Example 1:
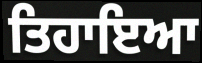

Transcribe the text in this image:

ਤਿਹਾਇਆ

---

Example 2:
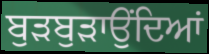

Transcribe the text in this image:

ਬੁੜਬੁੜਾਉਂਦਿਆਂ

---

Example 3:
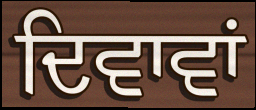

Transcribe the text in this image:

ਦਿਵਾਵਾਂ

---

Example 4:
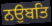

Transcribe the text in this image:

ਨਉਬਤਿ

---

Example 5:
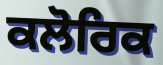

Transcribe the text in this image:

ਕਲੋਰਿਕ